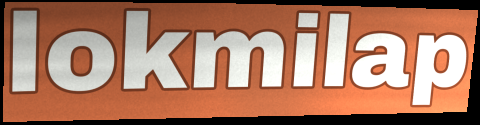
lokmilap